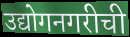
उद्योगनगरीची